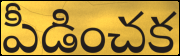
పీడించక